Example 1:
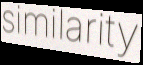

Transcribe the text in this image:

similarity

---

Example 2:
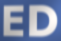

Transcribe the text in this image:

ED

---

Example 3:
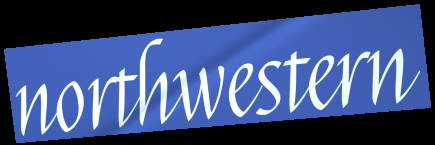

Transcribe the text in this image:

northwestern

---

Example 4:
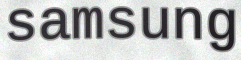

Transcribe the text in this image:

samsung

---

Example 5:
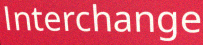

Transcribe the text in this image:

Interchange